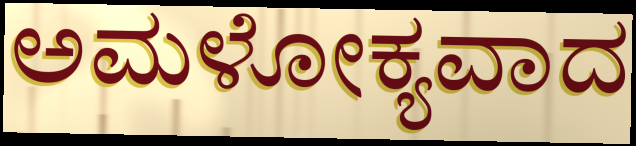
ಅಮಳೋಕ್ಯವಾದ